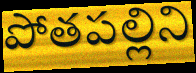
పోతపల్లిని